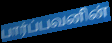
பார்ப்பவனின்